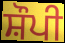
ਸ਼ੌਪੀ